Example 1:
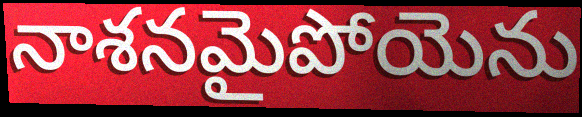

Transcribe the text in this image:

నాశనమైపోయెను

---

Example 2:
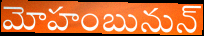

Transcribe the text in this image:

మోహంబునున్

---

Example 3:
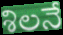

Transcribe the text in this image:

శిలనే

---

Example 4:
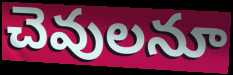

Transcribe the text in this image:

చెవులనూ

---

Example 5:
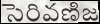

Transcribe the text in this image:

సెరివణిజ